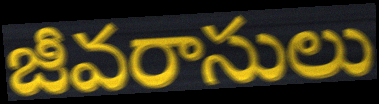
జీవరాసులు